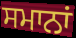
ਸਮਾਨਾਂ